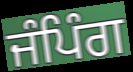
ਜੰਪਿੰਗ